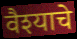
वैश्याचे